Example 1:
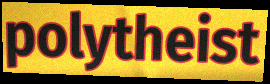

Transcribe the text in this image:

polytheist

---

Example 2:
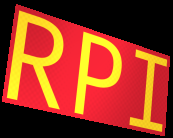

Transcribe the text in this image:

RPI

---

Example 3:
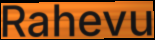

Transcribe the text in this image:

Rahevu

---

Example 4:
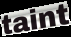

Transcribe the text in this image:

taint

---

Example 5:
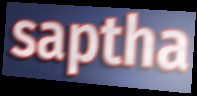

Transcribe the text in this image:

saptha